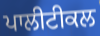
ਪਾਲੀਟੀਕਲ